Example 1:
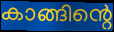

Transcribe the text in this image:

കാങ്ങിന്റെ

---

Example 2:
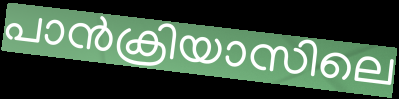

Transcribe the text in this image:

പാൻക്രിയാസിലെ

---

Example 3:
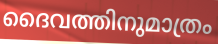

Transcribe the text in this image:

ദൈവത്തിനുമാത്രം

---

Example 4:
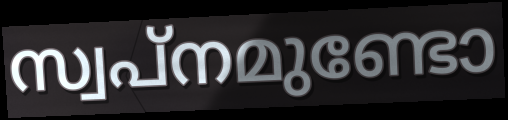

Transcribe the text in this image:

സ്വപ്നമുണ്ടോ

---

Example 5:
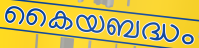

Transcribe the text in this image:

കൈയബദ്ധം